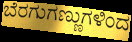
ಬೆರಗುಗಣ್ಣುಗಳಿಂದ